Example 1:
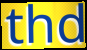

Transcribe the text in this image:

thd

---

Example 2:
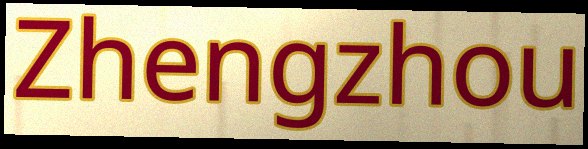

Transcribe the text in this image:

Zhengzhou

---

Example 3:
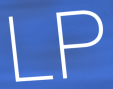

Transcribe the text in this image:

LP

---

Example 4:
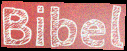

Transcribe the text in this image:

Bibel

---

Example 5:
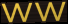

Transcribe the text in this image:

ww